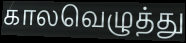
காலவெழுத்து